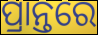
ପ୍ରାନ୍ତରେ